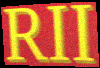
RII